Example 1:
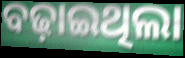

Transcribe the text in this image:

ବଢ଼ାଇଥିଲା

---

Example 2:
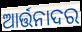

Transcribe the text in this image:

ଆର୍ତ୍ତନାଦର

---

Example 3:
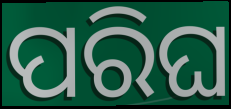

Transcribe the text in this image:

ପରିଘ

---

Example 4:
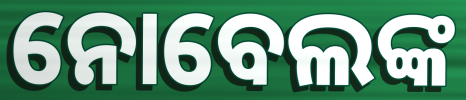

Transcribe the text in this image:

ନୋବେଲଙ୍କ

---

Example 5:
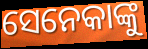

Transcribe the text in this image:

ସେନେକାଙ୍କୁ